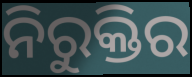
ନିରୁକ୍ତିର